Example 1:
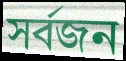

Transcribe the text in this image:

সৰ্বজন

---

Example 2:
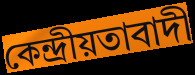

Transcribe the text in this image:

কেন্দ্ৰীয়তাবাদী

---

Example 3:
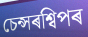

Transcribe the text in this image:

চেন্সৰশ্বিপৰ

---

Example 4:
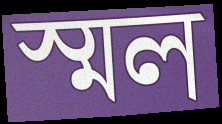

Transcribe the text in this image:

স্মল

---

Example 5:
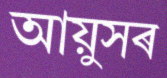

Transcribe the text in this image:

আয়ুসৰ